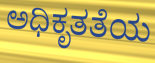
ಅಧಿಕೃತತೆಯ